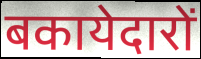
बकायेदारों